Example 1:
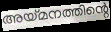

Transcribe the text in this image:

അയ്മനത്തിന്റെ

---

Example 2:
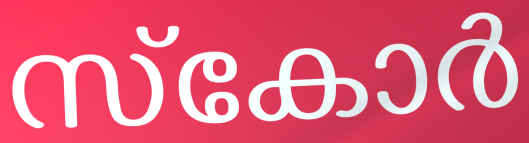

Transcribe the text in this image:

സ്‌കോർ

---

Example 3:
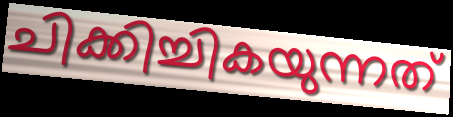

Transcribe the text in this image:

ചിക്കിച്ചികയുന്നത്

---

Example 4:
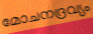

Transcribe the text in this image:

മോചനദ്രവ്യം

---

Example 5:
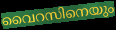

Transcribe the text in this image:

വൈറസിനെയും